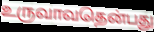
உருவாவதென்பது